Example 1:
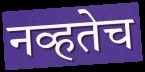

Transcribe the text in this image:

नव्हतेच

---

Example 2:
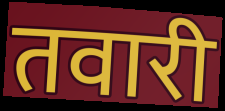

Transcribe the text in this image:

तवारी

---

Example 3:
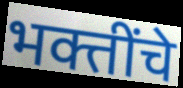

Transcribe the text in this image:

भक्तींचे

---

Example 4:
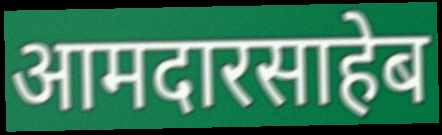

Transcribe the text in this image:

आमदारसाहेब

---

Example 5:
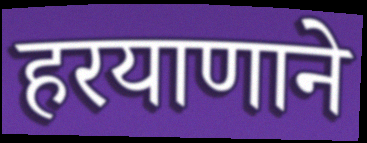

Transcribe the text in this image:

हरयाणाने